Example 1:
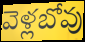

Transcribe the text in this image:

వెళ్లబోవు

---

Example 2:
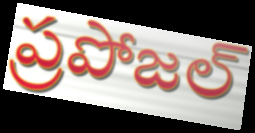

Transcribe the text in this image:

ప్రపోజల్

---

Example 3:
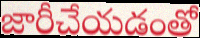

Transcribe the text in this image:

జారీచేయడంతో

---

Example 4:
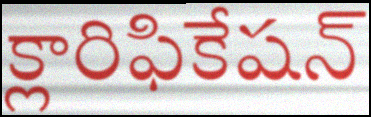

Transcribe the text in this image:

క్లారిఫికేషన్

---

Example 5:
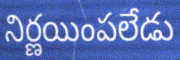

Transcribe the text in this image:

నిర్ణయింపలేడు